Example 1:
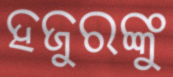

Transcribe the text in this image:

ହଜୁରଙ୍କୁ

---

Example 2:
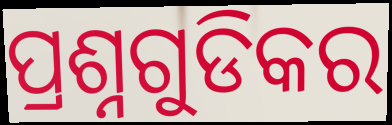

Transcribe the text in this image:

ପ୍ରଶ୍ନଗୁଡିକର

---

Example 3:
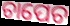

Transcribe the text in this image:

ଚାପେଚ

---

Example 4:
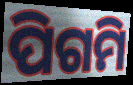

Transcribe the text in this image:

ପିଗମି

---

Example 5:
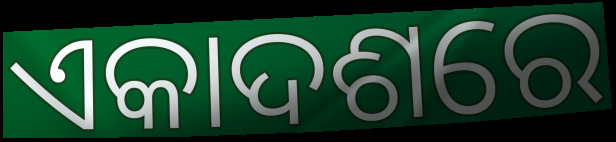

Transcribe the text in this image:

ଏକାଦଶରେ